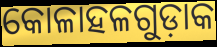
କୋଳାହଳଗୁଡ଼ାକ